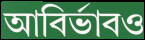
আবির্ভাবও